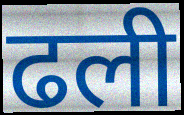
ढली